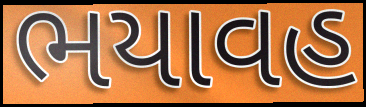
ભયાવહ